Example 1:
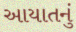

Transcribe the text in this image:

આયાતનું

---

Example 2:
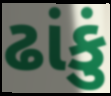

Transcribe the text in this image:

ઢાંકું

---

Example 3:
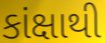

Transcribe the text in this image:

કાંક્ષાથી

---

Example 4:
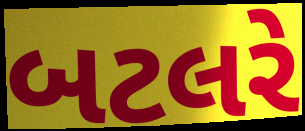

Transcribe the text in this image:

બટલરે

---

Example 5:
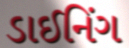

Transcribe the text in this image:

ડાઈનિંગ